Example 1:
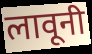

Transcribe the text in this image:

लावूनी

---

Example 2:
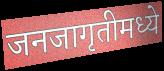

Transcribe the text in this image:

जनजागृतीमध्ये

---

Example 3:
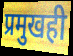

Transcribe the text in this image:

प्रमुखही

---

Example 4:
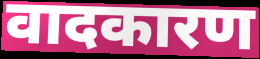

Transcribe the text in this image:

वादकारण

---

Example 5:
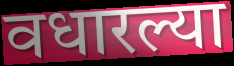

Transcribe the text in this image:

वधारल्या